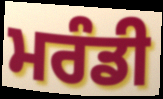
ਮਰੰਡੀ